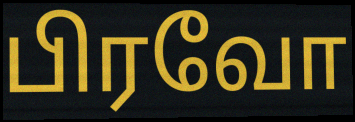
பிரவோ